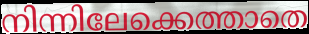
നിന്നിലേക്കെത്താതെ